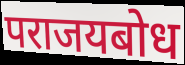
पराजयबोध